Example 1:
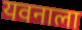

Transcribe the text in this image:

यवनाला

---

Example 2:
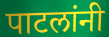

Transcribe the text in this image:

पाटलांनी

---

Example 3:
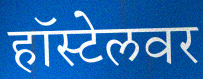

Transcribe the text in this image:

हॉस्टेलवर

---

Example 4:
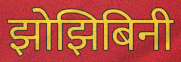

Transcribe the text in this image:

झोझिबिनी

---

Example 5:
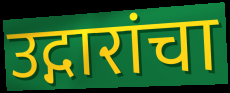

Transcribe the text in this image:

उद्गारांचा